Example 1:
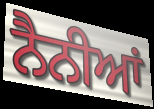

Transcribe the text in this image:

ਨੈਨੀਆਂ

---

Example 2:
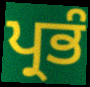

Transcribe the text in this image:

ਪ੍ਰਭੰ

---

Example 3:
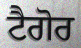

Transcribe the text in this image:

ਟੈਗੋਰ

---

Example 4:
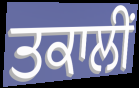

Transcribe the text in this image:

ਤਕਾਲੀਂ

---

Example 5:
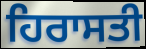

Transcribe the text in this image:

ਹਿਰਾਸਤੀ